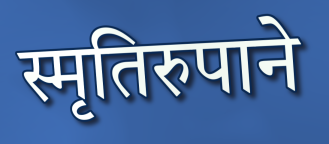
स्मृतिरुपाने